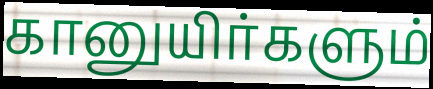
கானுயிர்களும்